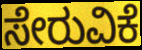
ಸೇರುವಿಕೆ